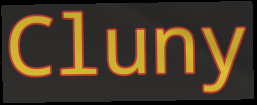
Cluny